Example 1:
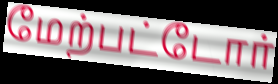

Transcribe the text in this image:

மேற்பட்டோர்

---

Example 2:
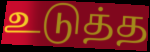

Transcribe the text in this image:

உடுத்த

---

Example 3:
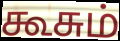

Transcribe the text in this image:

கூசும்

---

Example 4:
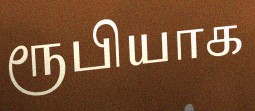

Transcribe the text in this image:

ரூபியாக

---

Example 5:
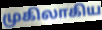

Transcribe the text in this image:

முகிலாகிய